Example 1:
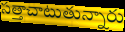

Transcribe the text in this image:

సత్తాచాటుతున్నారు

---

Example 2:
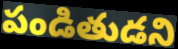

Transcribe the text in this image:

పండితుడని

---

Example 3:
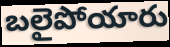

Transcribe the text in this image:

బలైపోయారు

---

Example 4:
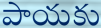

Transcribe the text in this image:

పాయకు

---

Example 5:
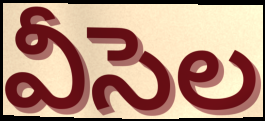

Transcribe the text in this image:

వీసెల